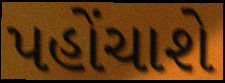
પહોંચાશે